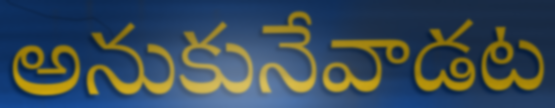
అనుకునేవాడట